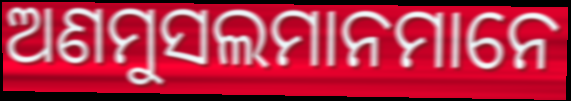
ଅଣମୁସଲମାନମାନେ